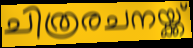
ചിത്രരചനയ്ക്ക്